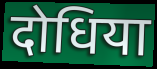
दोधिया